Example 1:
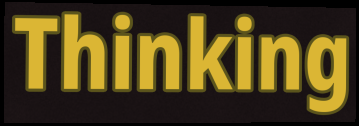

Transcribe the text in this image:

Thinking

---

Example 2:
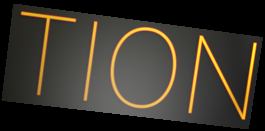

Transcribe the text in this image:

TION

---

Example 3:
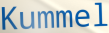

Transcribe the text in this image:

Kummel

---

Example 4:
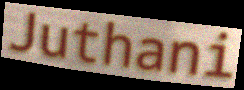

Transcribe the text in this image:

Juthani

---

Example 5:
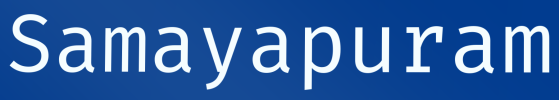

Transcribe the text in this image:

Samayapuram